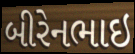
બીરેનભાઇ